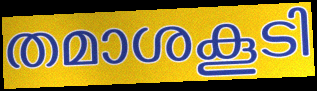
തമാശകൂടി